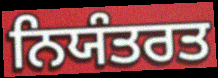
ਨਿਯੰਤਰਤ